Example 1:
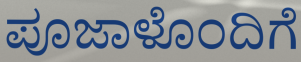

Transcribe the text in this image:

ಪೂಜಾಳೊಂದಿಗೆ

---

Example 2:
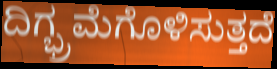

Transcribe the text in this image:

ದಿಗ್ಭ್ರಮೆಗೊಳಿಸುತ್ತದೆ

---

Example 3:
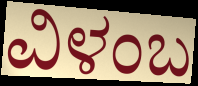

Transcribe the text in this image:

ವಿಳಂಬ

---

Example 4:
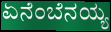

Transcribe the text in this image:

ಏನೆಂಬೆನಯ್ಯ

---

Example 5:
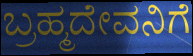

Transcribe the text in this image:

ಬ್ರಹ್ಮದೇವನಿಗೆ